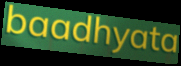
baadhyata